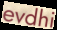
evdhi